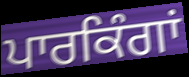
ਪਾਰਕਿੰਗਾਂ